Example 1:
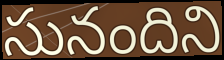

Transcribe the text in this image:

సునందిని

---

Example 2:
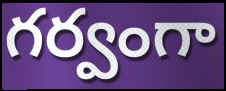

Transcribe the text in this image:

గర్వంగా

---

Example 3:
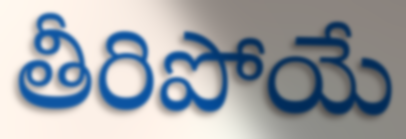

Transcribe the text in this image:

తీరిపోయే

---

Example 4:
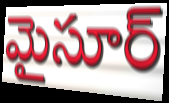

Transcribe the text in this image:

మైసూర్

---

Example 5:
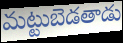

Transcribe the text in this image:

మట్టుబెడతాడు